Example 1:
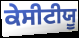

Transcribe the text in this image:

ਕੇਸੀਟੀਯੂ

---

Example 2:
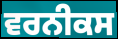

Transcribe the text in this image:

ਵਰਨੀਕਸ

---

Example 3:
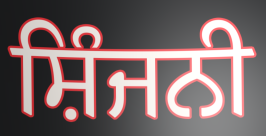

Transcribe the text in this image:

ਸ਼ਿੰਜਨੀ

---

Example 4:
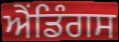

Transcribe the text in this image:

ਐਂਡਿੰਗਸ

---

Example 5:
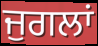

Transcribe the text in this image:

ਜੁਗਲਾਂ